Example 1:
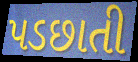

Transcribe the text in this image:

પડછાતી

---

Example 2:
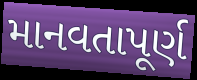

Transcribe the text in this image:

માનવતાપૂર્ણ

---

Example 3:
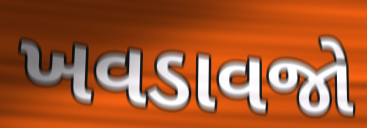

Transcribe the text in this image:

ખવડાવજો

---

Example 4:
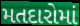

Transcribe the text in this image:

મતદારોમાં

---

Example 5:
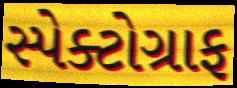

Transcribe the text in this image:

સ્પેક્ટોગ્રાફ